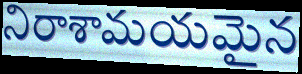
నిరాశామయమైన